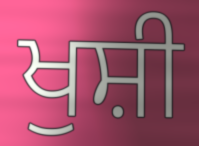
ਖੁਸ਼ੀ